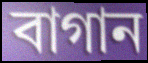
বাগান